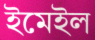
ইমেইল